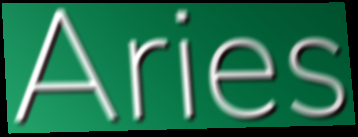
Aries